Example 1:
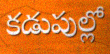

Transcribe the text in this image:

కడుపుల్లో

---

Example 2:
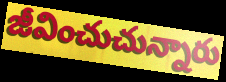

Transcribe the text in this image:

జీవించుచున్నారు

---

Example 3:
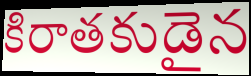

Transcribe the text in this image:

కిరాతకుడైన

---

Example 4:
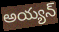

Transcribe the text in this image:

అయ్యన్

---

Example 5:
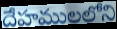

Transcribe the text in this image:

దేహములలోని